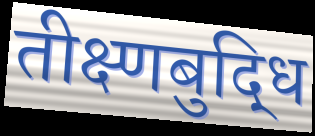
तीक्ष्णबुद्धि